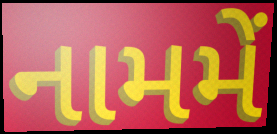
નામમેં